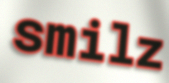
smilz